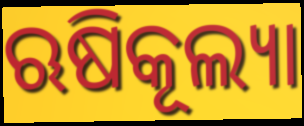
ଋଷିକୂଲ୍ୟା